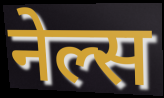
नेल्स